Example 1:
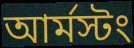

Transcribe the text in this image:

আর্মস্টং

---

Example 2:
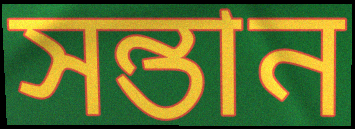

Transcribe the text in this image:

সন্তান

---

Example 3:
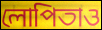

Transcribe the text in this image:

লোপিতাও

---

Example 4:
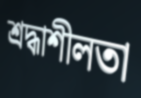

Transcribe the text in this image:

শ্রদ্ধাশীলতা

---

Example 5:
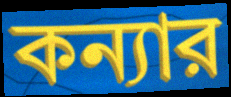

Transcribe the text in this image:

কন্যার